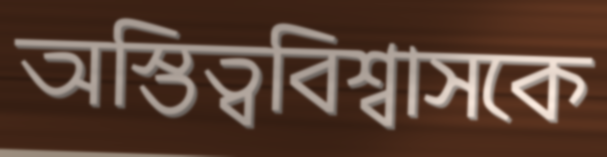
অস্তিত্ববিশ্বাসকে